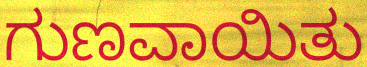
ಗುಣವಾಯಿತು